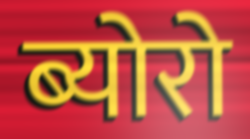
ब्योरो